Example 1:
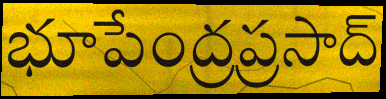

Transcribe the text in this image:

భూపేంద్రప్రసాద్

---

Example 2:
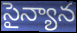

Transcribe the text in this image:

సైన్యాన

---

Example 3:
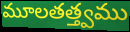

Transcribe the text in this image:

మూలతత్త్వము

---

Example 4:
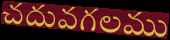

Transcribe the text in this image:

చదువగలము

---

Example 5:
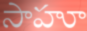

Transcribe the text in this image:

సాహూ